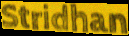
Stridhan